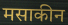
मसाकीन